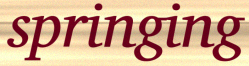
springing